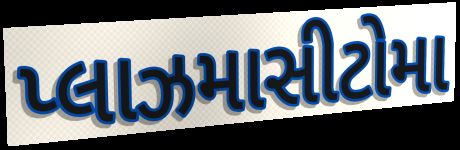
પ્લાઝમાસીટોમા